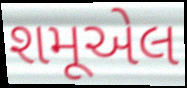
શમૂએલ